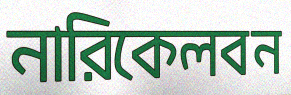
নারিকেলবন